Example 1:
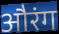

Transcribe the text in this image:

औरंग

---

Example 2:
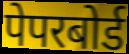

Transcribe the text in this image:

पेपरबोर्ड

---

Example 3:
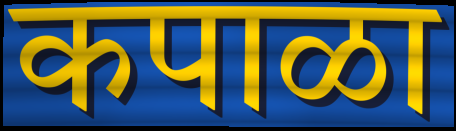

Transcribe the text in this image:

कपाळा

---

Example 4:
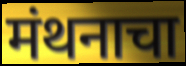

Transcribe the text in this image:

मंथनाचा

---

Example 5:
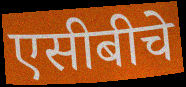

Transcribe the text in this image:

एसीबीचे